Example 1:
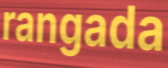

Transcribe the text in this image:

rangada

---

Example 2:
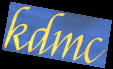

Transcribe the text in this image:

kdmc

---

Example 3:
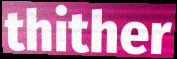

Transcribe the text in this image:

thither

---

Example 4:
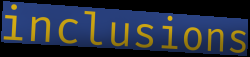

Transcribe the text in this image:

inclusions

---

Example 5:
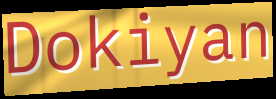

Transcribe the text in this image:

Dokiyan